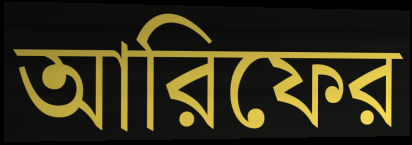
আরিফের